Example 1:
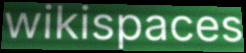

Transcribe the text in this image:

wikispaces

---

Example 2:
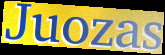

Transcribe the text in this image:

Juozas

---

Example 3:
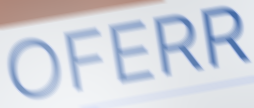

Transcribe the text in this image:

OFERR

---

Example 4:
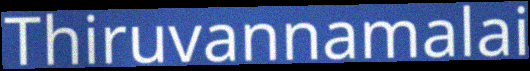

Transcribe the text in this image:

Thiruvannamalai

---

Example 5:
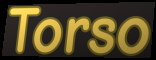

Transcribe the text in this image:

Torso